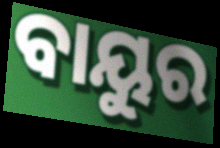
ବାୟୁର